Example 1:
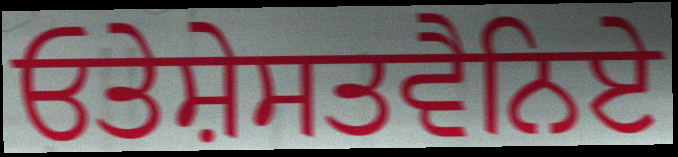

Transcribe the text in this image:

ਓਤੇਸ਼ੇਸਤਵੈਨਿਏ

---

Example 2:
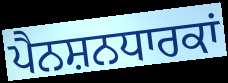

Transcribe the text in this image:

ਪੈਨਸ਼ਨਧਾਰਕਾਂ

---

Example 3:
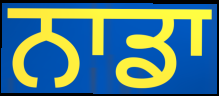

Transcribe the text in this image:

ਨਾਡਾ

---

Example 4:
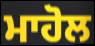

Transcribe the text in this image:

ਮਾਹੋਲ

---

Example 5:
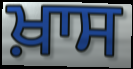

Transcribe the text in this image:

ਖ਼ਾਸ